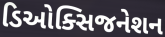
ડિઓક્સિજનેશન